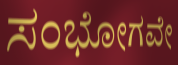
ಸಂಭೋಗವೇ